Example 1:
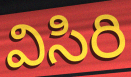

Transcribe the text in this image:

విసిరి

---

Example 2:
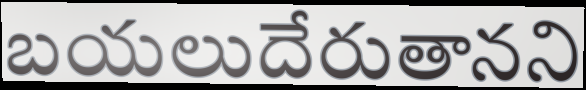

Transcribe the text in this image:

బయలుదేరుతానని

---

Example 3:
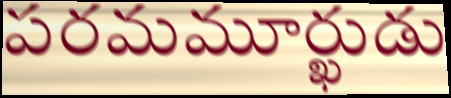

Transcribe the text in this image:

పరమమూర్ఖుడు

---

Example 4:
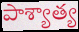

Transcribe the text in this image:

పాశ్యాత్య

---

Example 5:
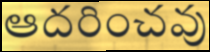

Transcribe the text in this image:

ఆదరించవు